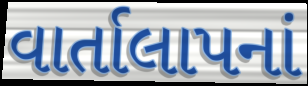
વાર્તાલાપનાં